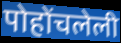
पोहोंचलेली